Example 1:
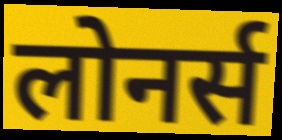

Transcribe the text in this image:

लोनर्स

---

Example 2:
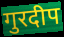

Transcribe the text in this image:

गुरदीप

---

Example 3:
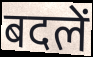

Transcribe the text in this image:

बदलें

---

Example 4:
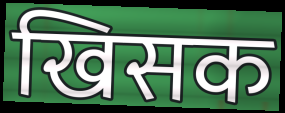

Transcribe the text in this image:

खिसक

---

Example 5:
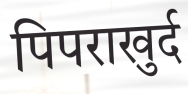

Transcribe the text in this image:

पिपराखुर्द